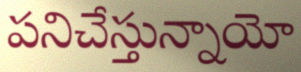
పనిచేస్తున్నాయో